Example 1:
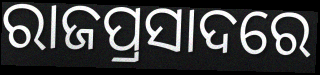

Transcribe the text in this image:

ରାଜପ୍ରସାଦରେ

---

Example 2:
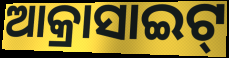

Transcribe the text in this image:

ଆକ୍ରାସାଇଟ୍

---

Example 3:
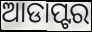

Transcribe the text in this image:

ଆଡାପ୍ଟର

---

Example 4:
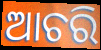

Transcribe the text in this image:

ଆଚରି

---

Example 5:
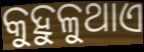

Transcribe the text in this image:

କୁହୁଳୁଥାଏ